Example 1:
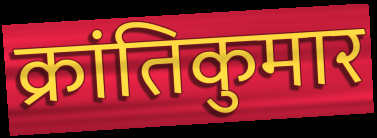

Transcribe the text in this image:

क्रांतिकुमार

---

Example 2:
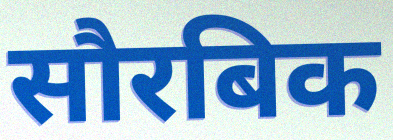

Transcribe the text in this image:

सौरबिक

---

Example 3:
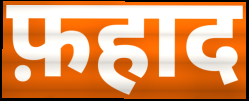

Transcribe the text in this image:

फ़हाद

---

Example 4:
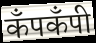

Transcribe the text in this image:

कँपकँपी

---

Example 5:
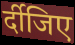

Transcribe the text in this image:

र्दीजिए